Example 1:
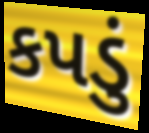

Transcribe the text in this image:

કપડું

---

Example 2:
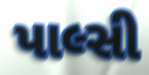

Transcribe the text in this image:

પાલ્સી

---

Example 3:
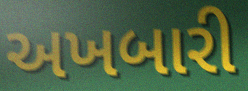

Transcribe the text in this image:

અખબારી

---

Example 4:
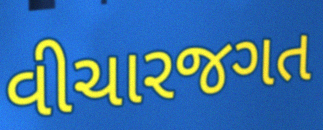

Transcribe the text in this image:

વીચારજગત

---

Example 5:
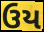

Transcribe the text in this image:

ઉય